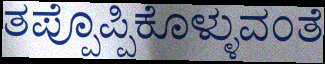
ತಪ್ಪೊಪ್ಪಿಕೊಳ್ಳುವಂತೆ